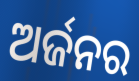
ଅର୍ଜନର